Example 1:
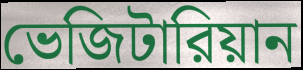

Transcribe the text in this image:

ভেজিটারিয়ান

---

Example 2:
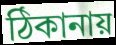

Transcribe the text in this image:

ঠিকানায়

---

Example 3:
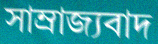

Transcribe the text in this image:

সাম্রাজ্যবাদ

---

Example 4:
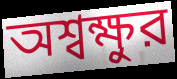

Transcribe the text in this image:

অশ্বক্ষুর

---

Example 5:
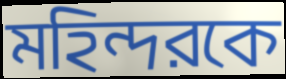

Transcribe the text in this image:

মহিন্দরকে